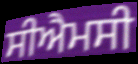
ਸੀਐਮਸੀ